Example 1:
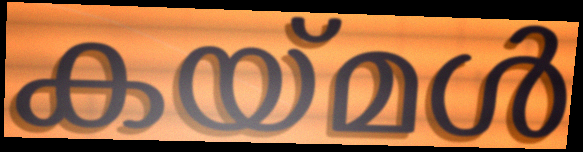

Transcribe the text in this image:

കയ്മൾ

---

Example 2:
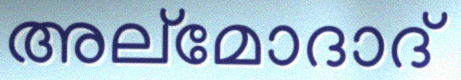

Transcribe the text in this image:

അല്മോദാദ്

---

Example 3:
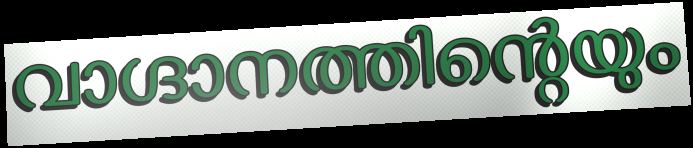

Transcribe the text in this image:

വാഗ്ദാനത്തിന്റെയും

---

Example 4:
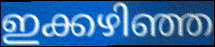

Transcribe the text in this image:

ഇക്കഴിഞ്ഞ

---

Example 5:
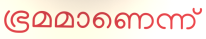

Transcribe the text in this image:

ഭ്രമമാണെന്ന്